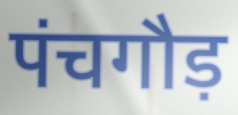
पंचगौड़